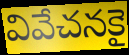
వివేచనకై